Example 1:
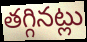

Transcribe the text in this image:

తగ్గినట్లు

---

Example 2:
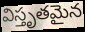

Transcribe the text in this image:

విస్తృతమైన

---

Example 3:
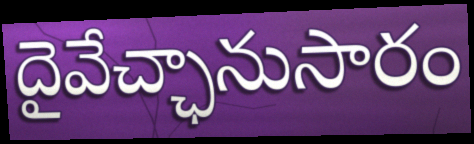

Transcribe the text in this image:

దైవేచ్ఛానుసారం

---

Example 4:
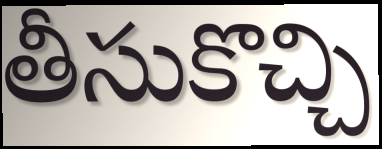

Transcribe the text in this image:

తీసుకొచ్చి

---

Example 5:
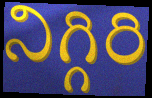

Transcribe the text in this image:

నిగ్గిరి